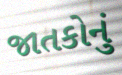
જાતકોનું